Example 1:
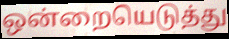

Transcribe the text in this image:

ஒன்றையெடுத்து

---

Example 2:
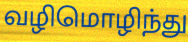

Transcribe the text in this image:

வழிமொழிந்து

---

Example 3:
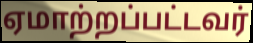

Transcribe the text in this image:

ஏமாற்றப்பட்டவர்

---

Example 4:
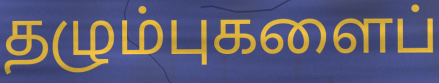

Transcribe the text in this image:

தழும்புகளைப்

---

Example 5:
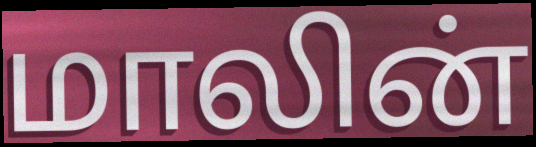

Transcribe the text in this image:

மாலின்